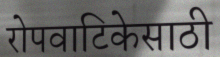
रोपवाटिकेसाठी